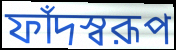
ফাঁদস্বরূপ